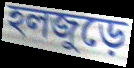
হলজুড়ে